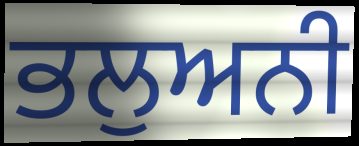
ਭਲੁਅਨੀ